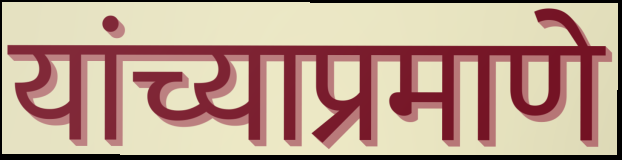
यांच्याप्रमाणे